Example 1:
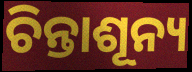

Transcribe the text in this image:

ଚିନ୍ତାଶୂନ୍ୟ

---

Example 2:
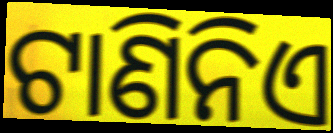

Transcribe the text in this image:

ଟାଣିନିଏ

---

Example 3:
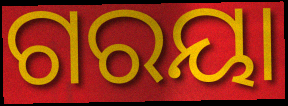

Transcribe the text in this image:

ଗରୟା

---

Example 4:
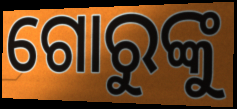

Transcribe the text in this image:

ଗୋରୁଙ୍କୁ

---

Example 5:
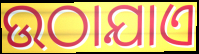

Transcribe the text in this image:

ଉଠାଯାଏ